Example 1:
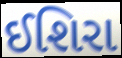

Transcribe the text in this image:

ઈશિરા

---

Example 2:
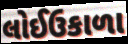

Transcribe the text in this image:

લોઈઉકાળા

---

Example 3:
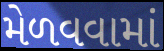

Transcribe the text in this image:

મેળવવામાં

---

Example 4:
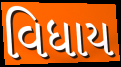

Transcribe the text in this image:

વિધાય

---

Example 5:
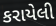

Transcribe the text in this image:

કરાયેલી